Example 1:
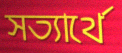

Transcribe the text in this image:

সত্যার্থে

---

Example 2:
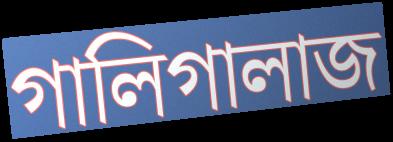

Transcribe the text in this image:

গালিগালাজ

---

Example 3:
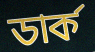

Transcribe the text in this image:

ডার্ক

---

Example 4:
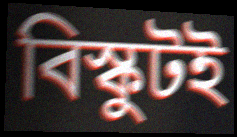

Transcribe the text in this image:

বিস্কুটই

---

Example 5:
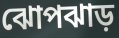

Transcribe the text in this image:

ঝোপঝাড়